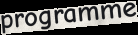
programme